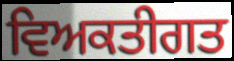
ਵਿਅਕਤੀਗਤ